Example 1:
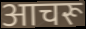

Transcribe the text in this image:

आचरू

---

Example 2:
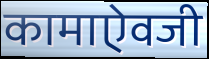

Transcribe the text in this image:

कामाऐवजी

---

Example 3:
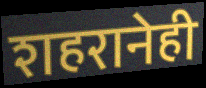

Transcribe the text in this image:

शहरानेही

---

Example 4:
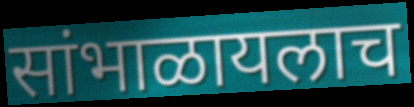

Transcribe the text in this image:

सांभाळायलाच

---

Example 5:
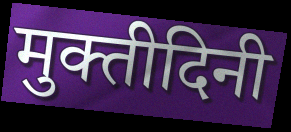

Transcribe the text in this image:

मुक्तीदिनी